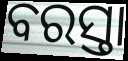
ବରସ୍ତା